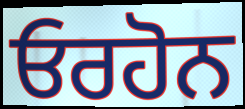
ਓਰਹੋਨ